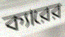
ক্যারের